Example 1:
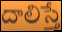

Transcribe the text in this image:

దాలిస్తే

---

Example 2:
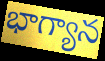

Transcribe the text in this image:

భాగ్యాన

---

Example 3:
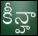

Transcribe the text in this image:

కీన్హా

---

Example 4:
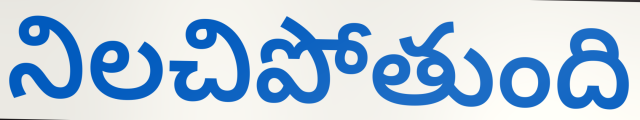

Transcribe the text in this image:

నిలచిపోతుంది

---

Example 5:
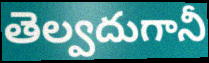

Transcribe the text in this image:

తెల్వదుగానీ